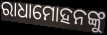
ରାଧାମୋହନଙ୍କୁ